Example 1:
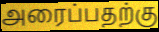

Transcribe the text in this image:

அரைப்பதற்கு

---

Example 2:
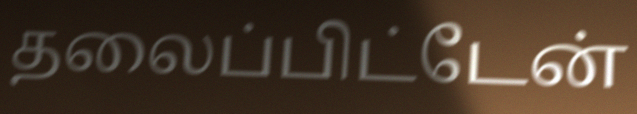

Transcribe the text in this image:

தலைப்பிட்டேன்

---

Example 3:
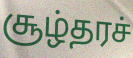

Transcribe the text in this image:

சூழ்தரச்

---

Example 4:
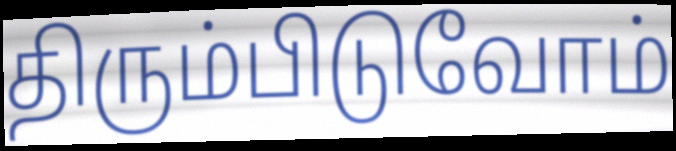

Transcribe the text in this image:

திரும்பிடுவோம்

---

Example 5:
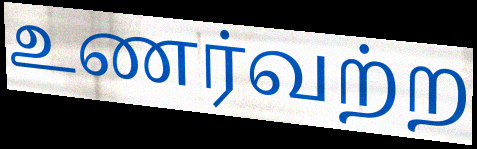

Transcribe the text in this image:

உணர்வற்ற